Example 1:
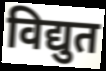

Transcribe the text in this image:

विद्युत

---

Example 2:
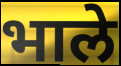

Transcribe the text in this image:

भाले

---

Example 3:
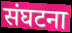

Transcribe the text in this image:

संघटना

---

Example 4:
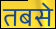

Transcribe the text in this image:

तबसे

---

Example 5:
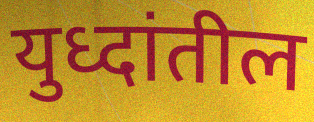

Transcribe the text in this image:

युध्दांतील